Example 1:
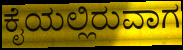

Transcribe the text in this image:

ಕೈಯಲ್ಲಿರುವಾಗ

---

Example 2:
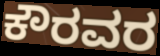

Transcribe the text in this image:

ಕೌರವರ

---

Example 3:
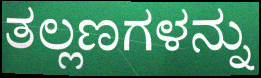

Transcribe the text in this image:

ತಲ್ಲಣಗಳನ್ನು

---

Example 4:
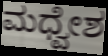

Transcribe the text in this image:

ಮಧ್ವೇಶ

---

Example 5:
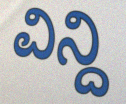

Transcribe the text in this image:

ವಿನ್ದಿ